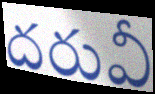
దరువీ